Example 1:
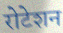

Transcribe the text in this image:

रोटेशन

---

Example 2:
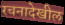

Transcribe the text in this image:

रचनादेखील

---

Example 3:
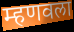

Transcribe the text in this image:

म्हणवला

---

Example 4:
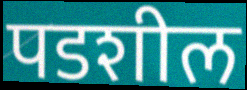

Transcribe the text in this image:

पडशील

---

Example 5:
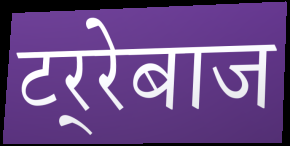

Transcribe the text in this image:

टर्रेबाज